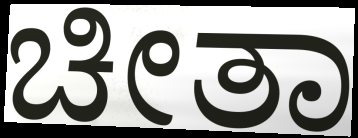
ಚೀತಾ